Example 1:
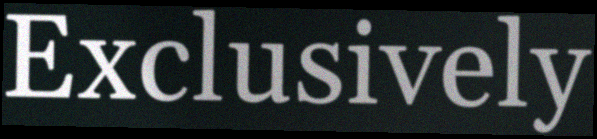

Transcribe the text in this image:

Exclusively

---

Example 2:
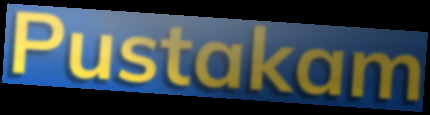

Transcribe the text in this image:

Pustakam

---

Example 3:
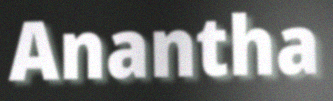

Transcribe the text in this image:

Anantha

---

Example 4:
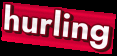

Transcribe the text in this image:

hurling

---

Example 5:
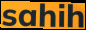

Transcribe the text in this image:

sahih